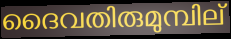
ദൈവതിരുമുമ്പില്